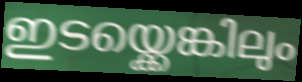
ഇടയ്ക്കെങ്കിലും